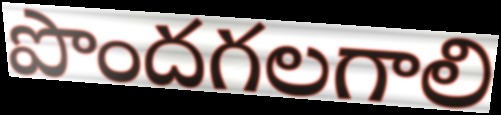
పొందగలగాలి